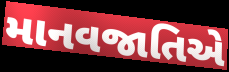
માનવજાતિએ